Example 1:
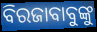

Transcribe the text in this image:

ବିରଜାବାବୁଙ୍କୁ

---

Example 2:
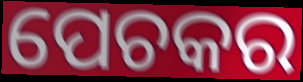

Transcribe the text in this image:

ପେଚକର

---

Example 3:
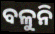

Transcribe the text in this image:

ବଳୁନି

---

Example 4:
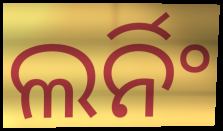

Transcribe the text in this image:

ଲର୍ନିଂ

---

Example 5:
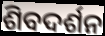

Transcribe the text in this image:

ଶିବଦର୍ଶନ